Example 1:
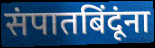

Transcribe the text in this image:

संपातबिंदूंना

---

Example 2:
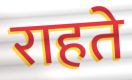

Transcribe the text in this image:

राहते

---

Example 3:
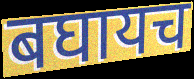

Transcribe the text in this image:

बघायच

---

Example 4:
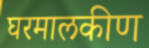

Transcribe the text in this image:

घरमालकीण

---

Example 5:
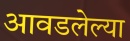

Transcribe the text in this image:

आवडलेल्या